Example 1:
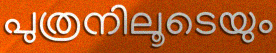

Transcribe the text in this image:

പുത്രനിലൂടെയും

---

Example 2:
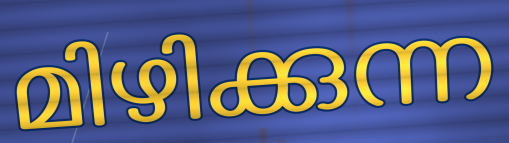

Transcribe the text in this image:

മിഴിക്കുന്ന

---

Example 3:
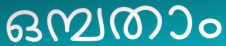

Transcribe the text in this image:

ഒമ്പതാം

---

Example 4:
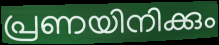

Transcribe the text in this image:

പ്രണയിനിക്കും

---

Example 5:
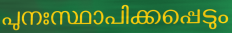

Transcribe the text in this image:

പുനഃസ്ഥാപിക്കപ്പെടും